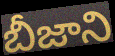
బీజాని